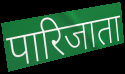
पारिजाता